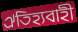
ঐতিহ্যবাহী